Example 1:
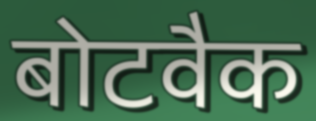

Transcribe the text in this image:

बोटवैक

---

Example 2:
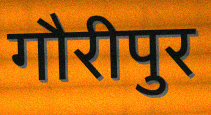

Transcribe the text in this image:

गौरीपुर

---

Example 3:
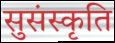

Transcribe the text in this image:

सुसंस्कृति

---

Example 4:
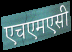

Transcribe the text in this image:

एचएमएसी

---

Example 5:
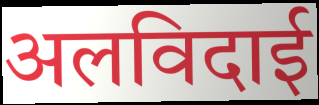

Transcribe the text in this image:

अलविदाई